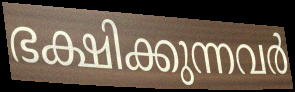
ഭക്ഷിക്കുന്നവർ